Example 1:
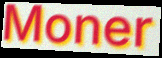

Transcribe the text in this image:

Moner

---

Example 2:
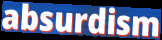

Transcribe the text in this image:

absurdism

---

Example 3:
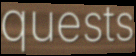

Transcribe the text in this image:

quests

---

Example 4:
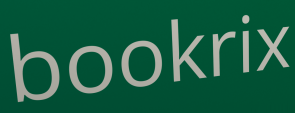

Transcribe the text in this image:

bookrix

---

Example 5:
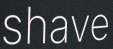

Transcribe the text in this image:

shave